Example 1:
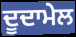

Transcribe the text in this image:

ਦੂਦਾਮੇਲ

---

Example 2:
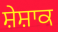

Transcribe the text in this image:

ਸ਼ੇਸ਼ਾਕ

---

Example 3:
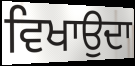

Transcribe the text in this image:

ਵਿਖਾਉਦਾ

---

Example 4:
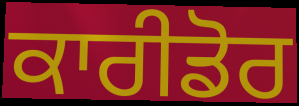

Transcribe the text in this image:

ਕਾਰੀਡੋਰ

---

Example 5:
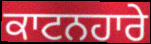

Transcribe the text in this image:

ਕਾਟਨਹਾਰੇ